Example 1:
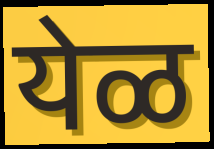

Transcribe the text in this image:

येळ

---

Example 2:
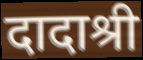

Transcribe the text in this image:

दादाश्री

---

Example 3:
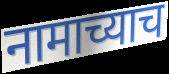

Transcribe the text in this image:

नामाच्याच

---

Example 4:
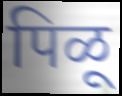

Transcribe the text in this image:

पिळू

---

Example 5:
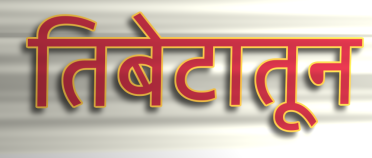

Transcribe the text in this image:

तिबेटातून